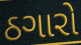
ઠગારો